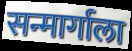
सन्मार्गाला